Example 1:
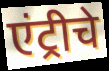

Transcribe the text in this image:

एंट्रीचे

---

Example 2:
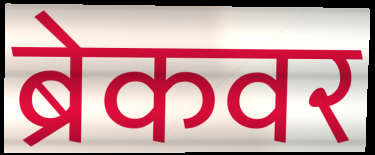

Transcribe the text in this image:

ब्रेकवर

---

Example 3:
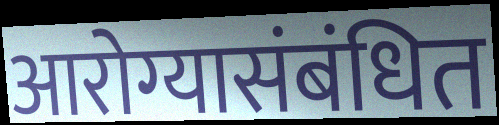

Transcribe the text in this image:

आरोग्यासंबंधित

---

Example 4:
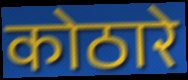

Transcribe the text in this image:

कोठारे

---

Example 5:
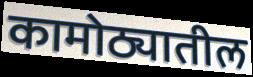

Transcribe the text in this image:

कामोठ्यातील